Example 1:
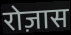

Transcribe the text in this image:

रोज़ास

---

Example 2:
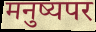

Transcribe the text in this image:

मनुष्यपर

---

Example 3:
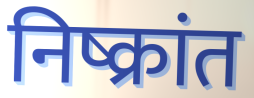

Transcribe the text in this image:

निष्क्रांत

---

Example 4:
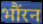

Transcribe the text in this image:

भौंरन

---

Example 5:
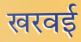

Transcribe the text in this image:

खरवई